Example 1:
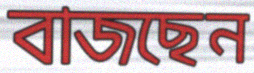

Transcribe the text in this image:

বাজছেন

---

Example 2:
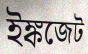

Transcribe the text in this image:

ইঙ্কজেট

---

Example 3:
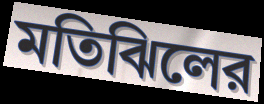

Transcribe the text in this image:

মতিঝিলের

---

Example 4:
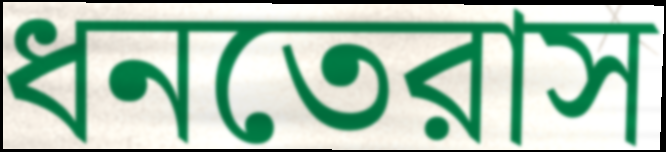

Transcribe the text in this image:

ধনতেরাস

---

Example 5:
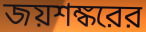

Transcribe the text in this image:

জয়শঙ্করের